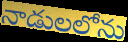
నాడులలోను